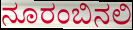
ನೂರಂಬಿನಲಿ